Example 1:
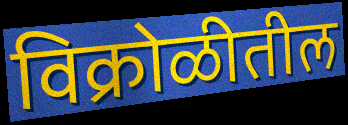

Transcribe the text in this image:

विक्रोळीतील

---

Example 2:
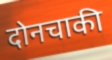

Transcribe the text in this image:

दोनचाकी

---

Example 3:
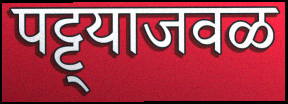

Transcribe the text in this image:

पट्ट्याजवळ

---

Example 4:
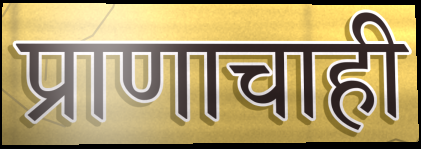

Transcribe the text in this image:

प्राणाचाही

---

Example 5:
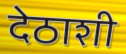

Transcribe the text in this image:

देठाशी